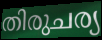
തിരുചര്യ